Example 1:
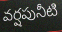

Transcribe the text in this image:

వర్షపునీటి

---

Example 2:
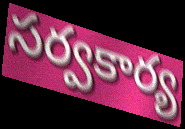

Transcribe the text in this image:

సర్వకార్య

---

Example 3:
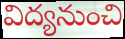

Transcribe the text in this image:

విద్యనుంచి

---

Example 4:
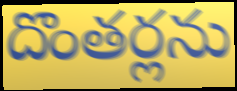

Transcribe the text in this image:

దొంతర్లను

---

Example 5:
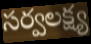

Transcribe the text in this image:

సర్వలక్ష్య